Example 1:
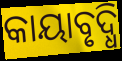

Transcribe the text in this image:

କାୟାବୃଦ୍ଧି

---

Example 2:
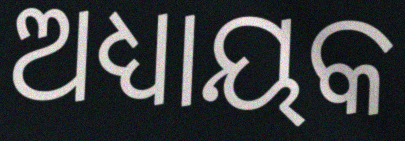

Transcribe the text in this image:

ଅଧ୍ୟାୟକ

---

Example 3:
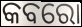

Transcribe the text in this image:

କବରୋ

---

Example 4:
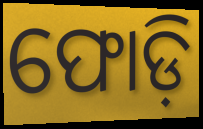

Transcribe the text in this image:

ଫୋଡ଼ି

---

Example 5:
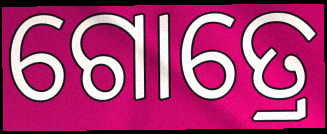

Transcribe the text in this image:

ଗୋତ୍ରେ